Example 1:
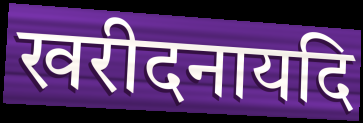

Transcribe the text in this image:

खरीदनायदि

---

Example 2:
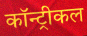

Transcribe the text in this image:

कॉन्ट्रीकल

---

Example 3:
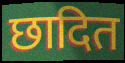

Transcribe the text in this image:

छादित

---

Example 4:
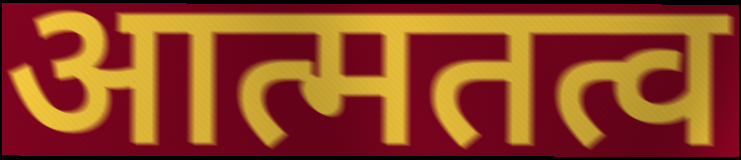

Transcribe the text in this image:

आत्मतत्व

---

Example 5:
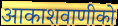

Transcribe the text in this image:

आकाशवाणीको